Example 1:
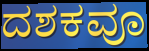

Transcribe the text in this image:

ದಶಕವೂ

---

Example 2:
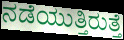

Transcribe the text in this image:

ನಡೆಯುತ್ತಿರುತ್ತೆ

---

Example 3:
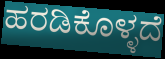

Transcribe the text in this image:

ಹರಡಿಕೊಳ್ಳದೆ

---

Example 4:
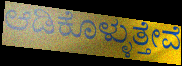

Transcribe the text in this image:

ಆಡಿಕೊಳ್ಳುತ್ತೇವೆ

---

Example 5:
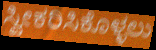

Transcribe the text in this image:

ಸ್ವೀಕರಿಸಿಕೊಳ್ಳಲು